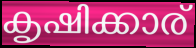
കൃഷിക്കാര്